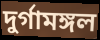
দুর্গামঙ্গল